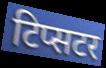
टिप्सटर